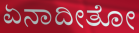
ಏನಾದೀತೋ